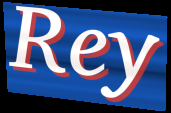
Rey